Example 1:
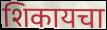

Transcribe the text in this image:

शिकायचा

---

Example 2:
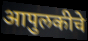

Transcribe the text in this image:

आपुलकीचे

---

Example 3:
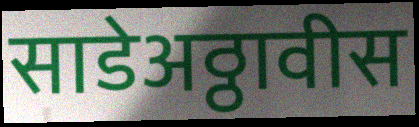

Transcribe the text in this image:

साडेअठ्ठावीस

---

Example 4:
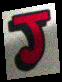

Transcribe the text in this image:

ग्‍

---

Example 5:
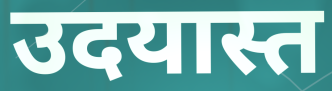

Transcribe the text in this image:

उदयास्त